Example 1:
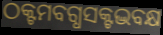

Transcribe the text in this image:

ଠକ୍ଟମବଗ୍ଧସକ୍ଟଦ୍ଭବକ୍ଷ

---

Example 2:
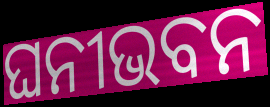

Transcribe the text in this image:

ଘନୀଭବନ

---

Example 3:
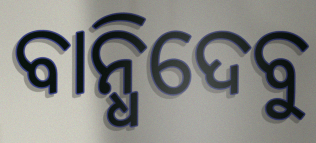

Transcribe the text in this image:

ବାନ୍ଧିଦେବୁ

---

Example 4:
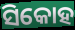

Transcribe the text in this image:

ସିକୋହ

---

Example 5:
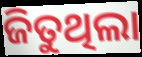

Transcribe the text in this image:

ଜିତୁଥିଲା